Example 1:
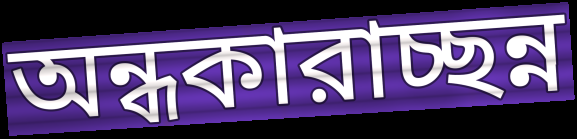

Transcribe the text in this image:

অন্ধকারাচ্ছন্ন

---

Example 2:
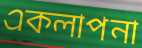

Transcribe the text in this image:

একলাপনা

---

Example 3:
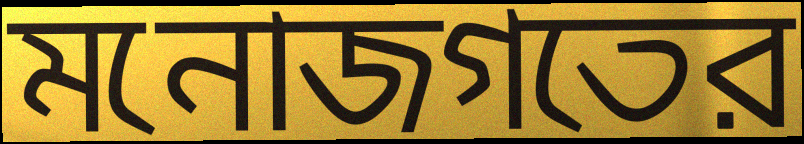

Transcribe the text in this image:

মনোজগতের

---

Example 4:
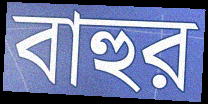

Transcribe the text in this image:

বাহুর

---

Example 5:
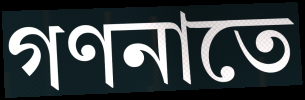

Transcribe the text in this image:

গণনাতে